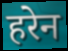
हरेन